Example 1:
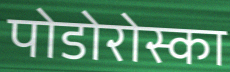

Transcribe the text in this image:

पोडोरोस्का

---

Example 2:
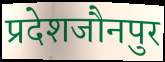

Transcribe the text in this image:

प्रदेशजौनपुर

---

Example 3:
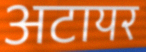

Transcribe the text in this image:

अटायर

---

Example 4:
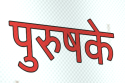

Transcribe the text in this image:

पुरुषके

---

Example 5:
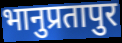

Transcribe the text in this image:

भानुप्रतापुर